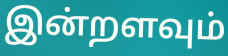
இன்றளவும்